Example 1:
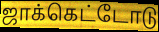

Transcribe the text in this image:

ஜாக்கெட்டோடு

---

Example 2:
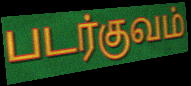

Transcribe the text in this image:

படர்குவம்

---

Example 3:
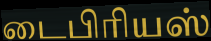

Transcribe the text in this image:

டைபிரியஸ்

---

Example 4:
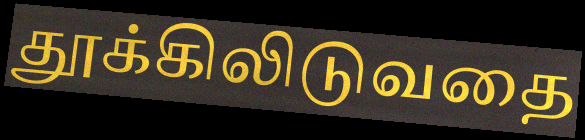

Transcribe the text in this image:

தூக்கிலிடுவதை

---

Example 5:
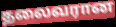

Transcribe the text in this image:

தலைவரான